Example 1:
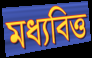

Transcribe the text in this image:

মধ্যবিত্ত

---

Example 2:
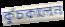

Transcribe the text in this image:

কুঁচকালেন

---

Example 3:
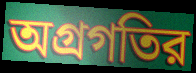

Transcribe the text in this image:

অগ্রগতির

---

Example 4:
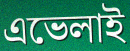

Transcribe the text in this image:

এভেলাই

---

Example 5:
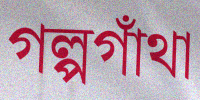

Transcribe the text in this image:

গল্পগাঁথা